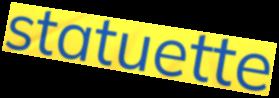
statuette